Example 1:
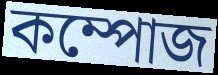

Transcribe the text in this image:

কম্পোজ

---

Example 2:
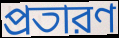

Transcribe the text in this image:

প্রতারণ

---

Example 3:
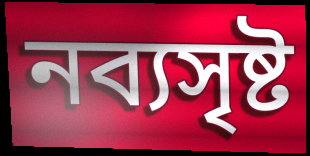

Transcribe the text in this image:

নব্যসৃষ্ট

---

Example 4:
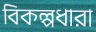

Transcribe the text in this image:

বিকল্পধারা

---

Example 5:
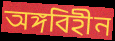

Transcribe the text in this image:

অঙ্গবিহীন